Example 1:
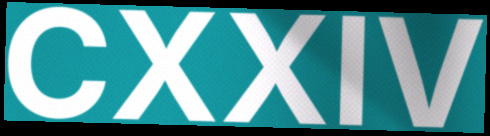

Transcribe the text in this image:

CXXIV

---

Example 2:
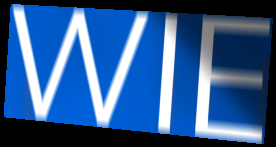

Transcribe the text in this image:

WIE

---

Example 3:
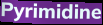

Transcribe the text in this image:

Pyrimidine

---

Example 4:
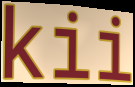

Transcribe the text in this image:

kii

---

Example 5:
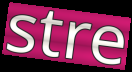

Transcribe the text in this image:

stre